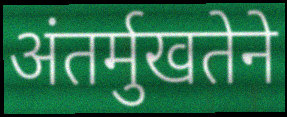
अंतर्मुखतेने